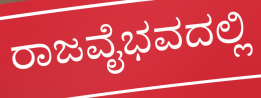
ರಾಜವೈಭವದಲ್ಲಿ